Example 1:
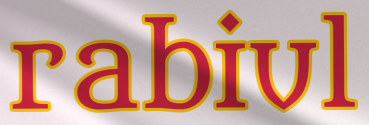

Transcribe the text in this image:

rabiul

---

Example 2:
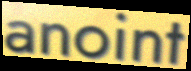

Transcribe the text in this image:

anoint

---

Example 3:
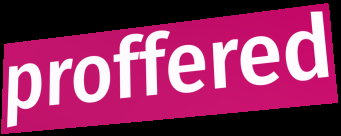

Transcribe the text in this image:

proffered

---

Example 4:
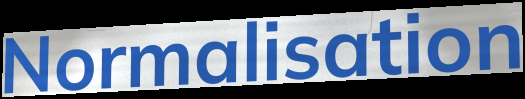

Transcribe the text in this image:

Normalisation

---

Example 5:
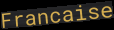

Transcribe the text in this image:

Francaise